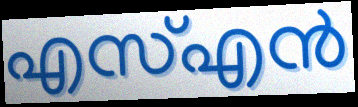
എസ്എൻ